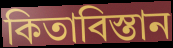
কিতাবিস্তান